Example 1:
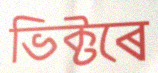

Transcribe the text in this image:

ভিক্টৰে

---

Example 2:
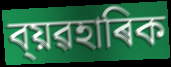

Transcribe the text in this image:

ব্য়ৱহাৰিক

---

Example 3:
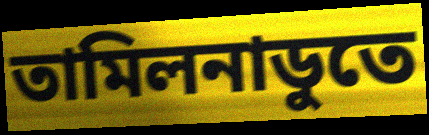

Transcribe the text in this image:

তামিলনাডুতে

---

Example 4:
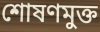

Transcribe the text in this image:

শোষণমুক্ত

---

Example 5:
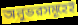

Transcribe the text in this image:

অনুভৱসমূহেই